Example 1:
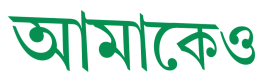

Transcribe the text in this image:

আমাকেও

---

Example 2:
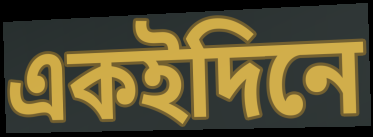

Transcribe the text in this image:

একইদিনে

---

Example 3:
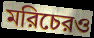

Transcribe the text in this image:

মরিচেরও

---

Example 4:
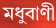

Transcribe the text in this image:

মধুবাণী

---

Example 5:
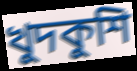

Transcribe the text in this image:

খুদকুশি